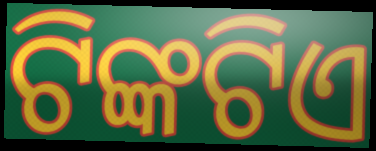
ଟିଙ୍କଟିଏ